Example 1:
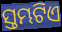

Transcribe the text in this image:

ସ୍ତମ୍ଭଟିଏ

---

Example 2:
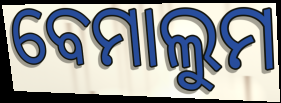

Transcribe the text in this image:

ବେମାଲୁମ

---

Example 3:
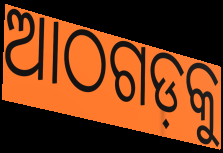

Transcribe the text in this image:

ଆଠଗଡ଼କୁ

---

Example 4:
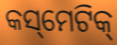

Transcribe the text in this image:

କସ୍‌ମେଟିକ୍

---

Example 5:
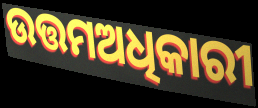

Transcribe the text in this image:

ଉତ୍ତମଅଧିକାରୀ